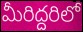
మీరిద్దరిలో